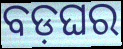
ବଡ଼ଘର